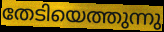
തേടിയെത്തുന്നു